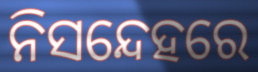
ନିସନ୍ଦେହରେ